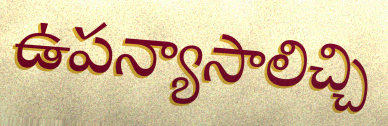
ఉపన్యాసాలిచ్చి